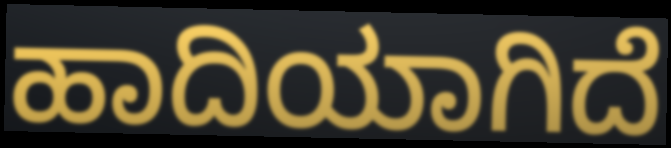
ಹಾದಿಯಾಗಿದೆ